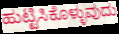
ಹುಟ್ಟಿಸಿಕೊಳ್ಳುವುದು